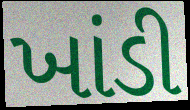
ખાંડી